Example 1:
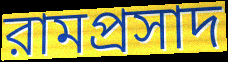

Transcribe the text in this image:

রামপ্রসাদ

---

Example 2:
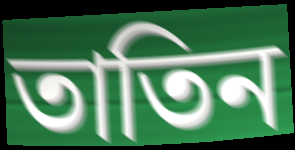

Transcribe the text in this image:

তাতিন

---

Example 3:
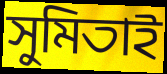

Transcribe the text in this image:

সুমিতাই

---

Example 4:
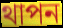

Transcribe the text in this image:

থাপন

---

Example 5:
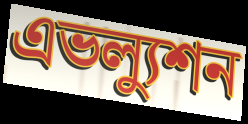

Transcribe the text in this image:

এভল্যুশন